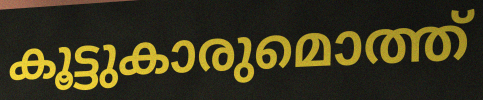
കൂട്ടുകാരുമൊത്ത്